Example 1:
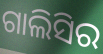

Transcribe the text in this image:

ଗାଲିସିର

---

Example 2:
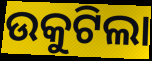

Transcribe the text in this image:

ଉକୁଟିଲା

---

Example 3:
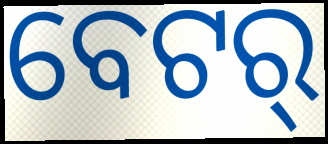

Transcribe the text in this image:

ବେଟର୍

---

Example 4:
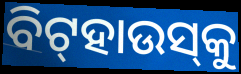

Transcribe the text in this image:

ବିଟ୍‌ହାଉସ୍‌କୁ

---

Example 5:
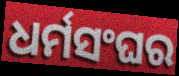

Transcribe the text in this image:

ଧର୍ମସଂଘର